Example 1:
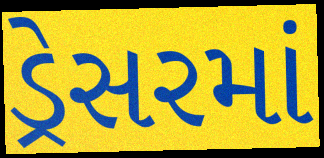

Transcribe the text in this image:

ડ્રેસરમાં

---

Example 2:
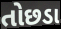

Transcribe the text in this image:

તોછડા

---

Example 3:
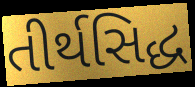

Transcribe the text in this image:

તીર્થસિદ્ધ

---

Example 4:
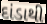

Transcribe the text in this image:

દાંડાથી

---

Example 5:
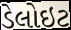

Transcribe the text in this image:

ડેલોઇટ